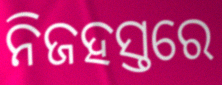
ନିଜହସ୍ତରେ